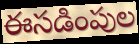
ఈసడింపుల